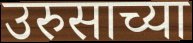
उरुसाच्या